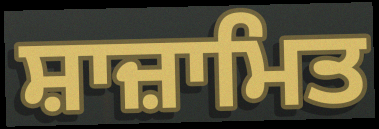
ਸ਼ਾਜ਼ਾਮਿਤ